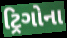
ટ્રિગોના